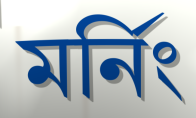
মর্নিং